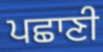
ਪਛਾਣੀ